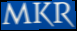
MKR